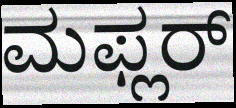
ಮಫ್ಲರ್